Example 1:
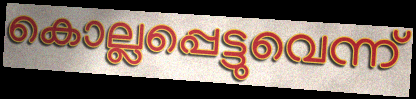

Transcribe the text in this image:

കൊല്ലപ്പെട്ടുവെന്ന്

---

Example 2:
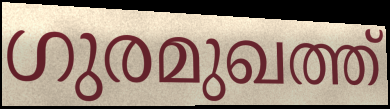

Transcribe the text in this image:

ഗുരമുഖത്ത്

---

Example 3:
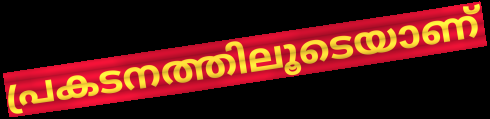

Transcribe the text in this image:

പ്രകടനത്തിലൂടെയാണ്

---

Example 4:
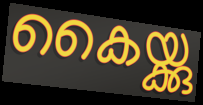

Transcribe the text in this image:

കൈയ്ക്കു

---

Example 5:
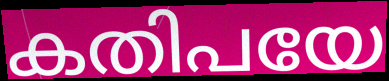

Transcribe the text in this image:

കതിപയേ